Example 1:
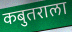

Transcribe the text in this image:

कबुतराला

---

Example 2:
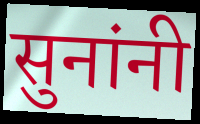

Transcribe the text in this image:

सुनांनी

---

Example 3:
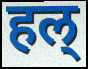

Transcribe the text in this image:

हल्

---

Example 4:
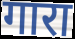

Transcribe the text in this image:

गारा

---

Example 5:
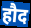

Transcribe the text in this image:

हौद